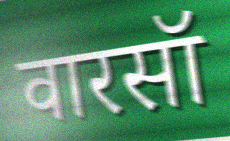
वारसॉ